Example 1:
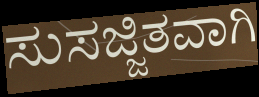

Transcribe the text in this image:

ಸುಸಜ್ಜಿತವಾಗಿ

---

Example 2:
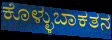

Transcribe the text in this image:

ಕೊಳ್ಳುಬಾಕತನ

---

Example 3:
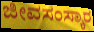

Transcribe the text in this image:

ಜೀವಸಂಸ್ಕಾರ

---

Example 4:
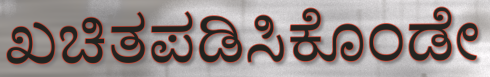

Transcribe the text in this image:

ಖಚಿತಪಡಿಸಿಕೊಂಡೇ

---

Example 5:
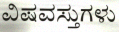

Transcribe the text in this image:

ವಿಷವಸ್ತುಗಳು